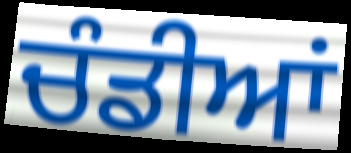
ਚੰਡੀਆਂ